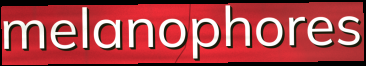
melanophores